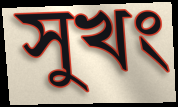
সুখং